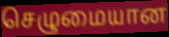
செழுமையான